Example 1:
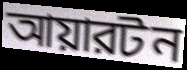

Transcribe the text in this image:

আয়ারটন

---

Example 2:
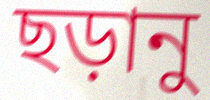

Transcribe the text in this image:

ছড়ানু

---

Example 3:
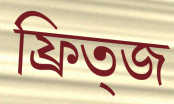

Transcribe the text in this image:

ফ্রিত্জ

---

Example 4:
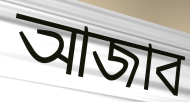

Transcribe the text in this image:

আজাব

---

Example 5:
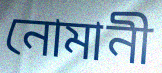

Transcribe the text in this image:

নোমানী